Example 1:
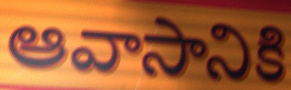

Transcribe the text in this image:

ఆవాసానికి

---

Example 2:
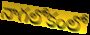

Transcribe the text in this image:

నాగలోకంలో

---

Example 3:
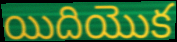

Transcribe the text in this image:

యిదియొక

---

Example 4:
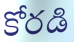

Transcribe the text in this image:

కోరడి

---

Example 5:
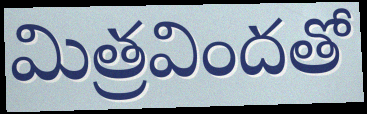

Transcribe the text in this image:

మిత్రవిందతో